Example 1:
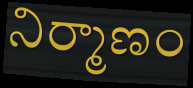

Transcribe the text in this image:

నిర్మాణం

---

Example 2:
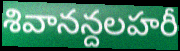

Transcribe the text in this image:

శివానన్దలహరీ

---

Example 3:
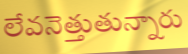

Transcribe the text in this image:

లేవనెత్తుతున్నారు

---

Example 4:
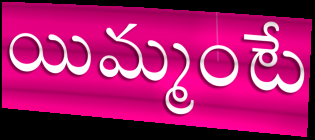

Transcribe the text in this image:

యిమ్మంటే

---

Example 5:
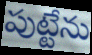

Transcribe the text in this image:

పుట్టేను